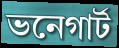
ভনেগার্ট